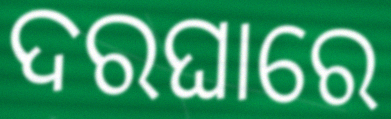
ଦରଘାରେ